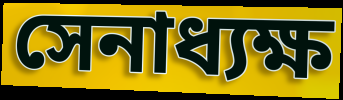
সেনাধ্যক্ষ